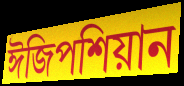
ঈজিপশিয়ান